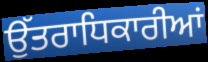
ਉੱਤਰਾਧਿਕਾਰੀਆਂ